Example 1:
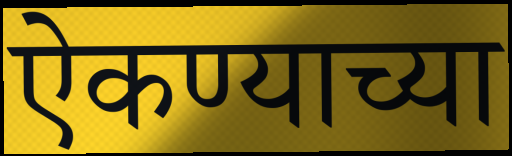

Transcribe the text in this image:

ऐकण्याच्या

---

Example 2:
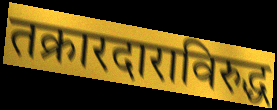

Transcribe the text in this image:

तक्रारदाराविरुद्ध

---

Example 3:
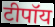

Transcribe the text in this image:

टीपॉय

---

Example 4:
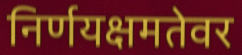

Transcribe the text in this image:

निर्णयक्षमतेवर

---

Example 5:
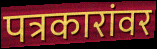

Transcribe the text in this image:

पत्रकारांवर